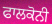
ਫਾਲਕੋਨੀ